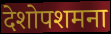
देशोपशमना